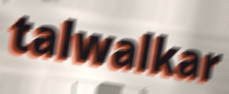
talwalkar